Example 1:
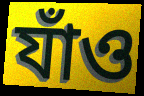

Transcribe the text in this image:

যাঁও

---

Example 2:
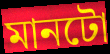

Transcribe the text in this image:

মানটো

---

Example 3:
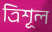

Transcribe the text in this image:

ত্ৰিশূল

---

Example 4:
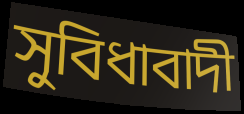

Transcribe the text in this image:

সুবিধাবাদী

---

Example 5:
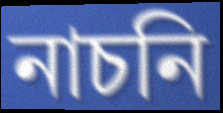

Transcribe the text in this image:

নাচনি